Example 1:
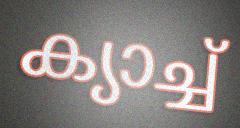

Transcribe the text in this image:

ക്യാച്ച്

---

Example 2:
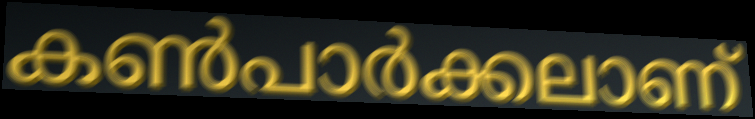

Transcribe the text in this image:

കൺപാർക്കലാണ്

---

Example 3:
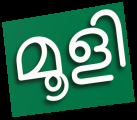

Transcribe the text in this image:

മൂളി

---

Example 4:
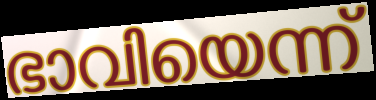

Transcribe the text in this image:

ഭാവിയെന്ന്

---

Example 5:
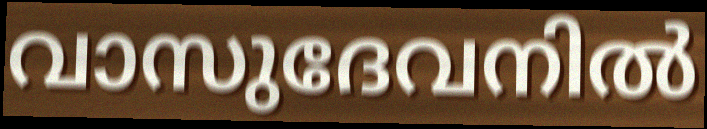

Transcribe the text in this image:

വാസുദേവനിൽ